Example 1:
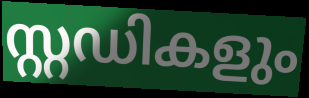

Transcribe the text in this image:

സ്റ്റഡികളും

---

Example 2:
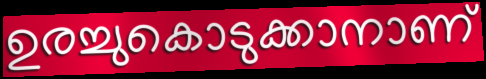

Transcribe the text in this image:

ഉരച്ചുകൊടുക്കാനാണ്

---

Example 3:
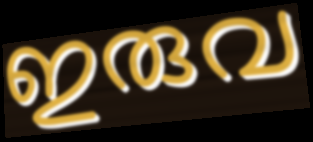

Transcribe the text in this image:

ഇരുവ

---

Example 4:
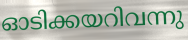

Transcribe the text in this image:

ഓടിക്കയറിവന്നു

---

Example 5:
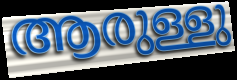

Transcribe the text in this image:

ആരുള്ളു